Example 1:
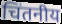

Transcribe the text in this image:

चिंतनीय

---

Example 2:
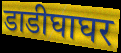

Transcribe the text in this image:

डाडीघाघर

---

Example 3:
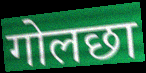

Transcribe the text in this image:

गोलछा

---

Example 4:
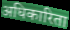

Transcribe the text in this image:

अधिकारिता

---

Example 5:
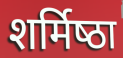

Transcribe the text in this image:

शर्मिष्‍ठा